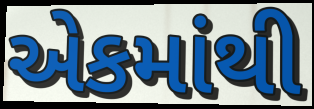
એકમાંથી